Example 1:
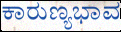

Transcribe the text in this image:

ಕಾರುಣ್ಯಭಾವ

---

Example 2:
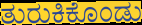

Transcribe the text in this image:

ತುರುಕಿಕೊಂಡು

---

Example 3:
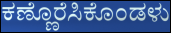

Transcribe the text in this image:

ಕಣ್ಣೊರೆಸಿಕೊಂಡಳು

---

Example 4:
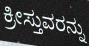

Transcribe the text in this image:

ಕ್ರೀಸ್ತುವರನ್ನು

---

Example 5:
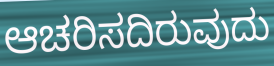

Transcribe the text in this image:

ಆಚರಿಸದಿರುವುದು